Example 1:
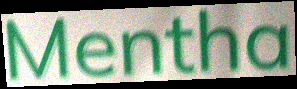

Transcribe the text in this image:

Mentha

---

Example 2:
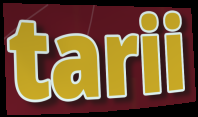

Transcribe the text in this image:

tarii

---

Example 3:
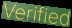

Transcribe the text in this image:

Verified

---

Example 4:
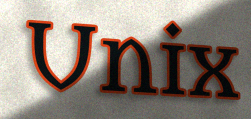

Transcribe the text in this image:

Unix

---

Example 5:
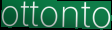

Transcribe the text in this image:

ottonto